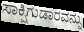
ಸಾಕ್ಷಿಗುಡಾರವನ್ನು